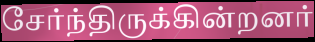
சேர்ந்திருக்கின்றனர்